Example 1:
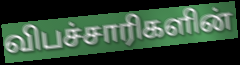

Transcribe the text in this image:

விபச்சாரிகளின்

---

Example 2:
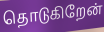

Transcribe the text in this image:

தொடுகிறேன்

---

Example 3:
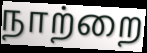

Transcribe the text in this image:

நாற்றை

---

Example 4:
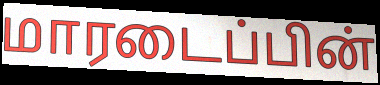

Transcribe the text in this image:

மாரடைப்பின்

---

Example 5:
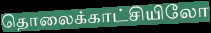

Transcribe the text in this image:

தொலைக்காட்சியிலோ